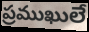
ప్రముఖులే